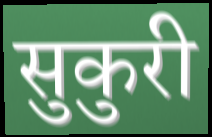
सुकुरी